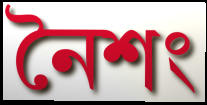
নৈশং